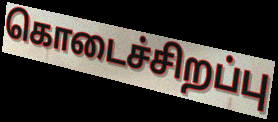
கொடைச்சிறப்பு